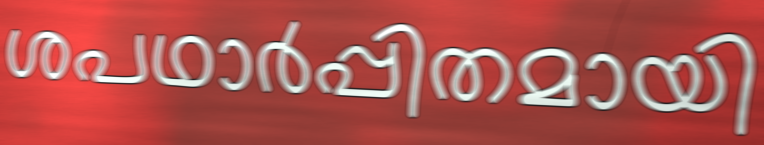
ശപഥാർപ്പിതമായി